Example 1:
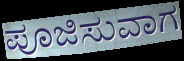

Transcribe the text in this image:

ಪೂಜಿಸುವಾಗ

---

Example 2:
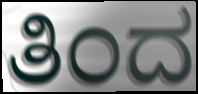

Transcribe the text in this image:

ತಿಂದ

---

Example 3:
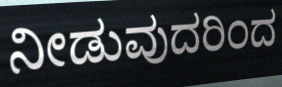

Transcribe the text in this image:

ನೀಡುವುದರಿಂದ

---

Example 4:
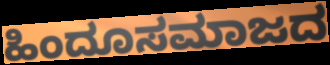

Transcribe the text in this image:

ಹಿಂದೂಸಮಾಜದ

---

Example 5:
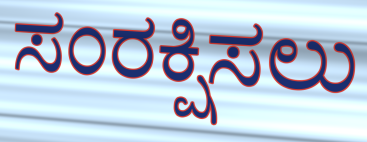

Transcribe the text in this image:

ಸಂರಕ್ಷಿಸಲು